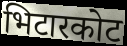
भिटारकोट